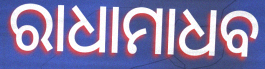
ରାଧାମାଧବ